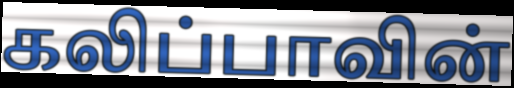
கலிப்பாவின்